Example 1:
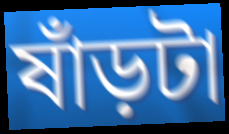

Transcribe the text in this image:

ষাঁড়টা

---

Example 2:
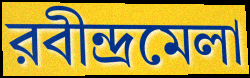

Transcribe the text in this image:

রবীন্দ্রমেলা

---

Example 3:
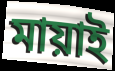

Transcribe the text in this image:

মায়াই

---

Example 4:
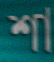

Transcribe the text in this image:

শা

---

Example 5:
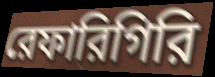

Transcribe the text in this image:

রেফারিগিরি